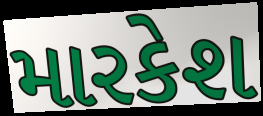
મારકેશ